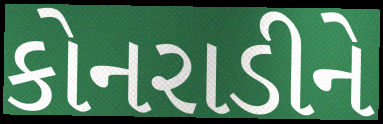
કોનરાડીને